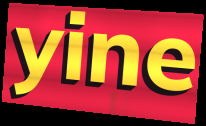
yine